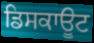
ਡਿਸਕਾਊਟ